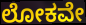
ಲೋಕವೇ